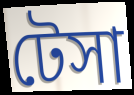
টেসা